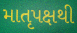
માતૃપક્ષથી